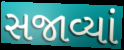
સજાવ્યાં